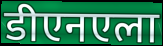
डीएनएला